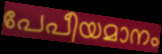
പേപീയമാനം